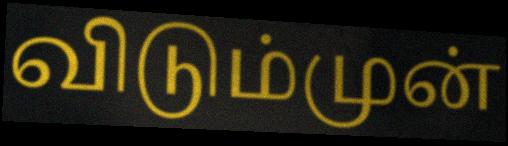
விடும்முன்